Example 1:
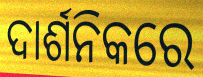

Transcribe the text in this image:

ଦାର୍ଶନିକରେ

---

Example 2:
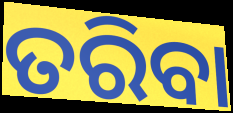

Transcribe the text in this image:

ତରିବା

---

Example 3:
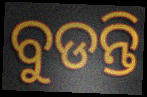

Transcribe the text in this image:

ବୁଡନ୍ତି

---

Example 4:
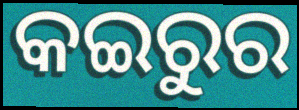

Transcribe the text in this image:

କଇରୁର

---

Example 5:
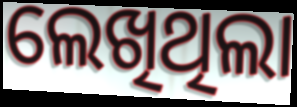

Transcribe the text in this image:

ଲେଖିଥିଲା